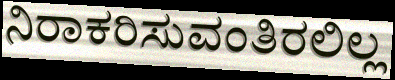
ನಿರಾಕರಿಸುವಂತಿರಲಿಲ್ಲ